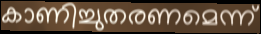
കാണിച്ചുതരണമെന്ന്